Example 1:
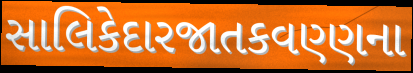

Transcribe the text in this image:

સાલિકેદારજાતકવણ્ણના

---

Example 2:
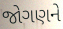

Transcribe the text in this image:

જોગણને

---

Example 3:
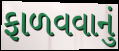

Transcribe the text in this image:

ફાળવવાનું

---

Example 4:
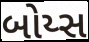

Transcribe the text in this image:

બોય્સ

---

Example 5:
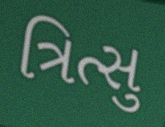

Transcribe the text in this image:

ત્રિત્સુ